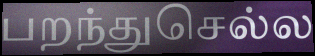
பறந்துசெல்ல